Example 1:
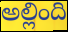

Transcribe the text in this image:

అల్లింది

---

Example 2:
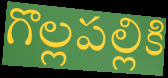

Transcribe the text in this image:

గొల్లపల్లికి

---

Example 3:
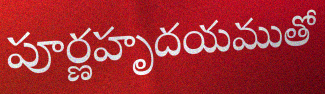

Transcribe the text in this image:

పూర్ణహృదయముతో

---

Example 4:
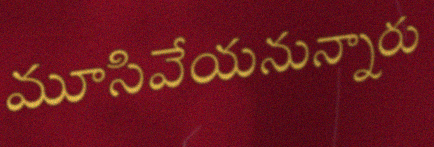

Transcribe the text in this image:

మూసివేయనున్నారు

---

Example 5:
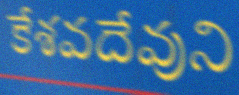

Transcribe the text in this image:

కేశవదేవుని